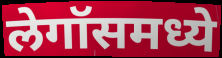
लेगॉसमध्ये